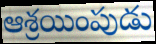
ఆశ్రయింపుడు